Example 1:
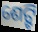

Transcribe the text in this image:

ଶେଟ୍ଟି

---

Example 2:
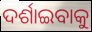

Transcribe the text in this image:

ଦର୍ଶାଇବାକୁ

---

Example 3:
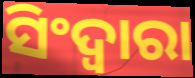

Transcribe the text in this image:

ସିଂଦ୍ୱାରା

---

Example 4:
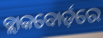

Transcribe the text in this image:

ବ୍ଲାକବୋର୍ଡ଼ରେ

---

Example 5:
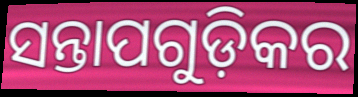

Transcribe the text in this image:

ସନ୍ତାପଗୁଡ଼ିକର